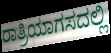
ರಾತ್ರಿಯಾಗಸದಲ್ಲಿ